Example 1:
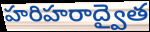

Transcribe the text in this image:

హరిహరాద్వైత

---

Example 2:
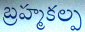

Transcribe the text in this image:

బ్రహ్మకల్ప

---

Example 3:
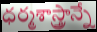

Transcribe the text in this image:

ధర్మశాస్త్రాన్నే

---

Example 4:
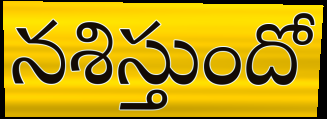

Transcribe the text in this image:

నశిస్తుందో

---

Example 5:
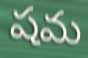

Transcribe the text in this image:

షమ